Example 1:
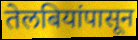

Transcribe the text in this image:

तेलबियांपासून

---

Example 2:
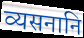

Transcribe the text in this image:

व्यसनानि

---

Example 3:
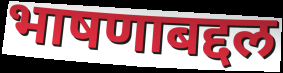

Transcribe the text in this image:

भाषणाबद्दल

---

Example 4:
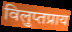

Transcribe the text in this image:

विलुप्तप्राय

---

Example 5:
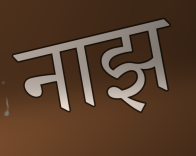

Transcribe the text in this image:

नाझ